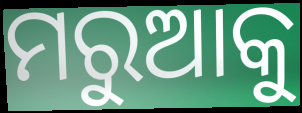
ମରୁଆକୁ